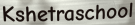
Kshetraschool